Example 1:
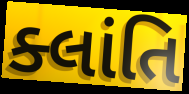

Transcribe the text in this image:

ક્લાંતિ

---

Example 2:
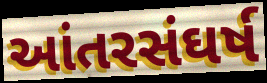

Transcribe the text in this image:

આંતરસંઘર્ષ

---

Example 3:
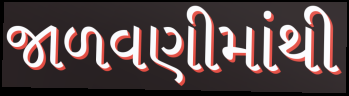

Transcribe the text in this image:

જાળવણીમાંથી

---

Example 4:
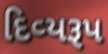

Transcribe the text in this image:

દિવ્‍યરૂપ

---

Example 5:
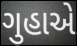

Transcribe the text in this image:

ગુહાએ